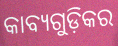
କାବ୍ୟଗୁଡ଼ିକର